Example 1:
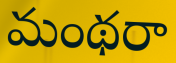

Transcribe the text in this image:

మంథరా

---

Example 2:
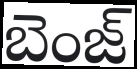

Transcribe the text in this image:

బెంజ్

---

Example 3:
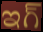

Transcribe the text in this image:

ఇగ్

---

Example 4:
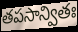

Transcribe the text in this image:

తపసాన్వితః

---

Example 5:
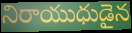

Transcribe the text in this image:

నిరాయుధుడైన